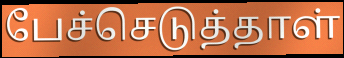
பேச்செடுத்தாள்